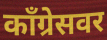
काँग्रेसवर